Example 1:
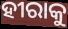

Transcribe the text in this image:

ହୀରାକୁ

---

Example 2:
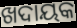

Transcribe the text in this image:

ଖଦାୟକ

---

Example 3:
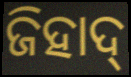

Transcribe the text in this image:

ଜିହାଦ୍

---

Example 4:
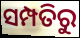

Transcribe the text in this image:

ସମ୍ପତିରୁ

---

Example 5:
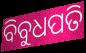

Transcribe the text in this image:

ବିବୁଧପତି